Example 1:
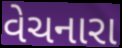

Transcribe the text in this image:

વેચનારા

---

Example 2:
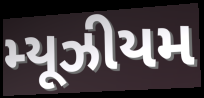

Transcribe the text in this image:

મ્યૂઝીયમ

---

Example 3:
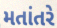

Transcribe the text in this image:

મતાંતરે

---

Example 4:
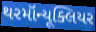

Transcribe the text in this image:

થરમૉન્યૂક્લિયર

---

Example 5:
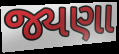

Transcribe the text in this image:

જ્યણા